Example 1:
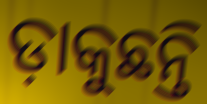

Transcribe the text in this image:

ଡ଼ାକୁଛନ୍ତି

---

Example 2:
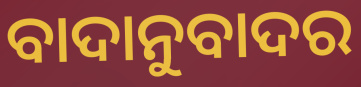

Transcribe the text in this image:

ବାଦାନୁବାଦର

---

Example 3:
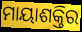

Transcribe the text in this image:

ମାୟାଶକ୍ତିର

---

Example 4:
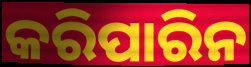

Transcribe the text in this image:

କରିପାରିନ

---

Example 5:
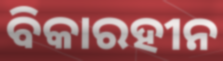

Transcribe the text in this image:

ବିକାରହୀନ